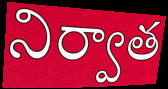
నిర్వాత